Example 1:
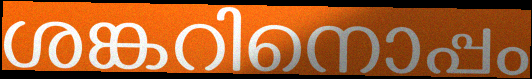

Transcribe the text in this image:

ശങ്കറിനൊപ്പം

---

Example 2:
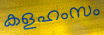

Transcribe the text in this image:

കളഹംസം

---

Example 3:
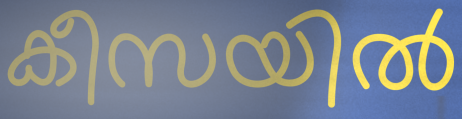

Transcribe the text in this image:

കീസയിൽ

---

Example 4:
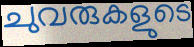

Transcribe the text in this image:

ചുവരുകളുടെ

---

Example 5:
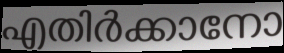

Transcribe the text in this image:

എതിർക്കാനോ